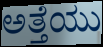
ಅತ್ತೆಯು